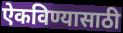
ऐकविण्यासाठी